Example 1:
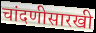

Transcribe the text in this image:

चांदणीसारखी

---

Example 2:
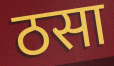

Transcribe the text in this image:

ठसा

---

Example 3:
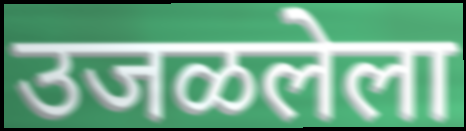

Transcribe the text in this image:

उजळलेला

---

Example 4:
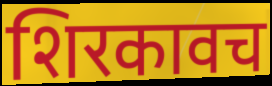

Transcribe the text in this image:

शिरकावच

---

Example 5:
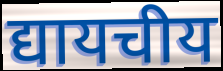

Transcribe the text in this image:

द्यायचीय